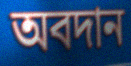
অবদান